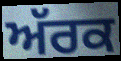
ਅੱਰਕ